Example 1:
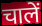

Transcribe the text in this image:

चालें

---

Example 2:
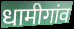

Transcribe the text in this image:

धामीगांव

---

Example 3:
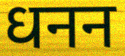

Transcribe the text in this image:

धनन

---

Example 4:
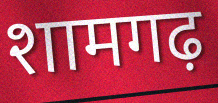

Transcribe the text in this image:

शामगढ़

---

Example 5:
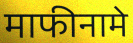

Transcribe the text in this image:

माफीनामे